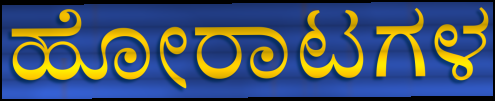
ಹೋರಾಟಗಳ